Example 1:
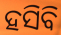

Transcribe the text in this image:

ହସିବି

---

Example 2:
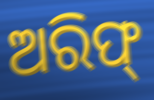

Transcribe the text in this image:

ଅରିଫ୍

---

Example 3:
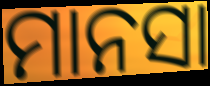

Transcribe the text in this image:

ମାନସା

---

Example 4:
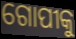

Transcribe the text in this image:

ଗୋପୀକୁ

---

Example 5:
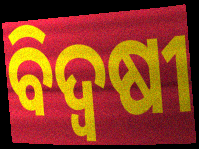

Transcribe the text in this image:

ବିଦ୍ୱଷୀ